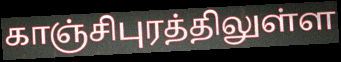
காஞ்சிபுரத்திலுள்ள